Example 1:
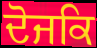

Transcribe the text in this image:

ਦੋਜਕਿ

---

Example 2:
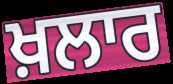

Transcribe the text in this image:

ਖ਼ਲਾਰ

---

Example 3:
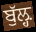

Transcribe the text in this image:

ਬੁੱਲ਼੍ਹ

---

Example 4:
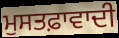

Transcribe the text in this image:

ਮੁਸਤਫ਼ਾਵਾਦੀ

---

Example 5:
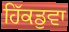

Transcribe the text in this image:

ਹਿੱਕਡੁਵਾ